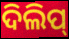
ଦିଲିପ୍